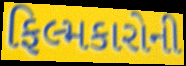
ફિલ્મકારોની